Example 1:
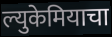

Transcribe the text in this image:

ल्युकेमियाचा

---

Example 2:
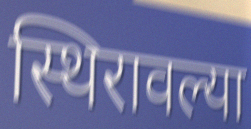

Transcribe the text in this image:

स्थिरावल्या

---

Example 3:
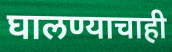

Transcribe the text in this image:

घालण्याचाही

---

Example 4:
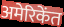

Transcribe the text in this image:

अमेरिकेंत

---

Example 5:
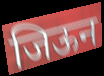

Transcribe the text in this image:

जिऊन